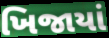
ખિજાયાં